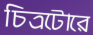
চিত্ৰটোৱে